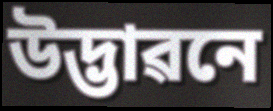
উদ্ভাৱনে